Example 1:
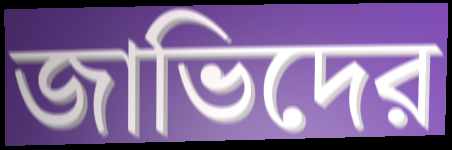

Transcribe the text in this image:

জাভিদের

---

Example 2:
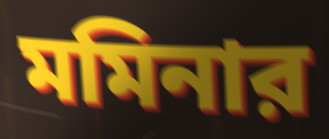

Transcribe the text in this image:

মমিনার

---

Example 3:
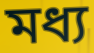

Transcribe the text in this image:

মধ্য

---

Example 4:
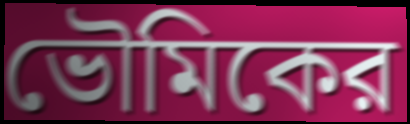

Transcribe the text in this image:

ভৌমিকের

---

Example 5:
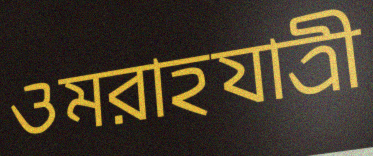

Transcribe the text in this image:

ওমরাহযাত্রী